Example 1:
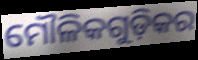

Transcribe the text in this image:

ମୌଳିକଗୁଡ଼ିକର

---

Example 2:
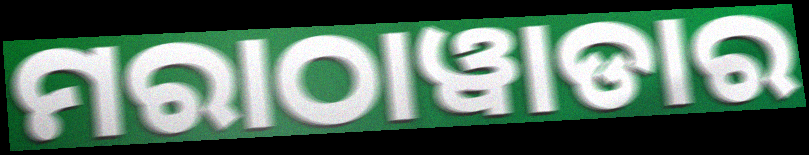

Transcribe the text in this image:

ମରାଠାୱାଡାର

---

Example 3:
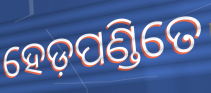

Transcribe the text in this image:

ହେଡ଼ପଣ୍ଡିତେ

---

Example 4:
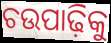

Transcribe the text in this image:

ଚଉପାଢ଼ିକୁ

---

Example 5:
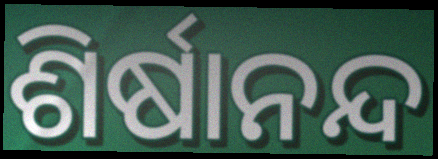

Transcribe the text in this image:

ଶିର୍ଷାନନ୍ଦ